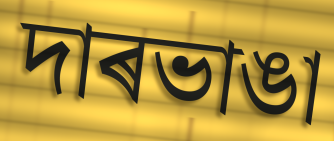
দাৰভাঙা